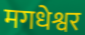
मगधेश्वर